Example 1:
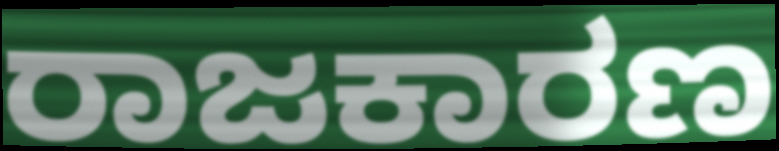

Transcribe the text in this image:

ರಾಜಕಾರಣ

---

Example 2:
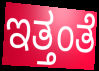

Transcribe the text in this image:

ಇತ್ತಂತೆ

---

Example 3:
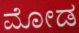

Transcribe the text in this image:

ಮೋಡ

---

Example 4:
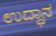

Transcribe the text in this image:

ಉದ್ಧಾನ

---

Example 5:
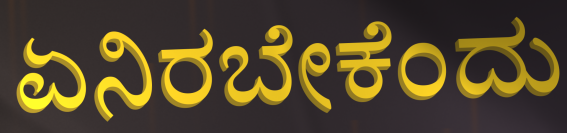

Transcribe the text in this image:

ಏನಿರಬೇಕೆಂದು